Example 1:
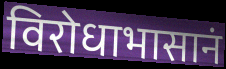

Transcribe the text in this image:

विरोधाभासानं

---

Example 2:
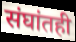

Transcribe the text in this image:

संघांतही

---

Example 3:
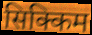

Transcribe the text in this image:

सिक्किम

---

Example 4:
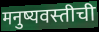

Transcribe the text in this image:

मनुष्यवस्तीची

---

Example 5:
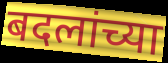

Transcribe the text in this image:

बदलांच्या